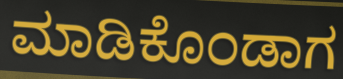
ಮಾಡಿಕೊಂಡಾಗ